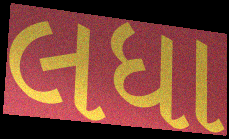
લધા